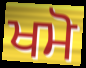
ਖਮੋ